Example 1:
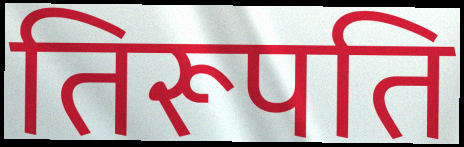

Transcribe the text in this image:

तिरूपति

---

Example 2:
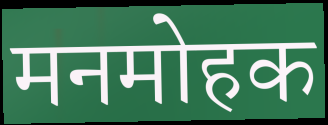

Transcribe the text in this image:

मनमोहक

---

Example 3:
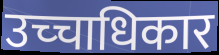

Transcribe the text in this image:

उच्‍चाधिकार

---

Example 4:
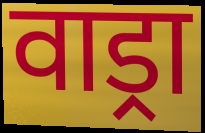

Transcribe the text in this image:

वाड्रा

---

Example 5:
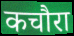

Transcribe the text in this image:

कचौरा